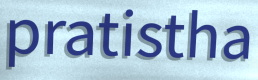
pratistha